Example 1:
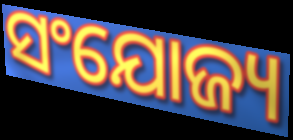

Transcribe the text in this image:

ସଂଯୋଜ୍ୟ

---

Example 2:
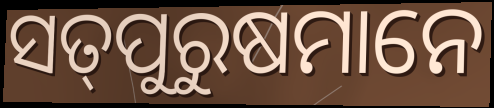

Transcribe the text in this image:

ସତ୍‌ପୁରୁଷମାନେ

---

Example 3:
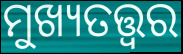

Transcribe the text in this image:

ମୁଖ୍ୟତତ୍ତ୍ୱର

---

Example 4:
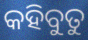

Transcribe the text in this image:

କହିବୁତୁ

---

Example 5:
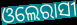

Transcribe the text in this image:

ଓଲେରାସୀ